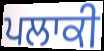
ਪਲਾਕੀ